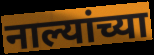
नाल्यांच्या